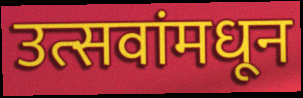
उत्सवांमधून